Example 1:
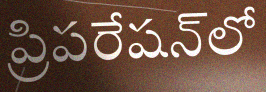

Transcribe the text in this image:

ప్రిపరేషన్‌లో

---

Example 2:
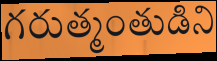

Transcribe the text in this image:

గరుత్మంతుడిని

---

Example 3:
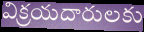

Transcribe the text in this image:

విక్రయదారులకు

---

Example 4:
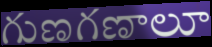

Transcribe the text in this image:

గుణగణాలూ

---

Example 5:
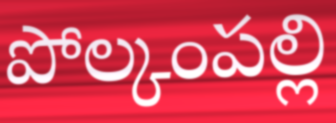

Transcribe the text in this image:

పోల్కంపల్లి